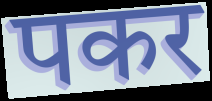
पकर